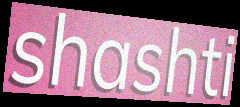
shashti